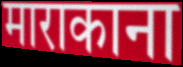
माराकाना